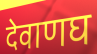
देवाणघ